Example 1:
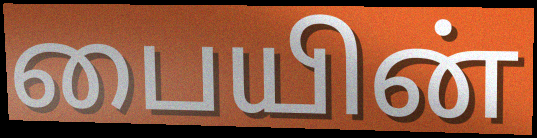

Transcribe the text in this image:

பையின்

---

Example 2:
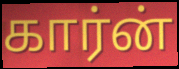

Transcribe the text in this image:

கார்ன்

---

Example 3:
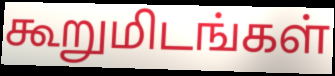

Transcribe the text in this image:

கூறுமிடங்கள்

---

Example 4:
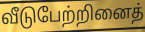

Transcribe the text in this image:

வீடுபேற்றினைத்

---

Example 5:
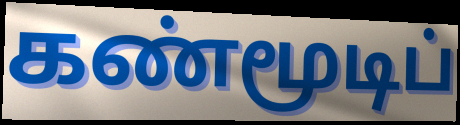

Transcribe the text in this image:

கண்மூடிப்